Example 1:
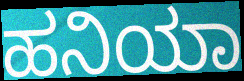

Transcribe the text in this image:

ಹನಿಯಾ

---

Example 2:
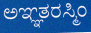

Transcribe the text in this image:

ಅಞ್ಞತರಸ್ಮಿಂ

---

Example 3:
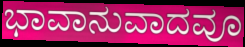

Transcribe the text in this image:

ಭಾವಾನುವಾದವೂ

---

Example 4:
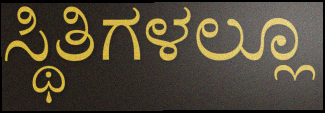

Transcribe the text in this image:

ಸ್ಥಿತಿಗಳಲ್ಲೂ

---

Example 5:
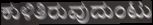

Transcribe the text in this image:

ಕುಳಿತಿರುವುದುಂಟು